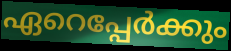
ഏറെപ്പേർക്കും